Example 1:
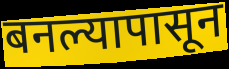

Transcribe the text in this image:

बनल्यापासून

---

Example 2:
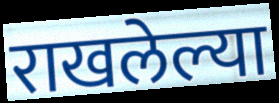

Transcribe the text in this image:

राखलेल्या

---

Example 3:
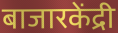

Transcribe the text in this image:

बाजारकेंद्री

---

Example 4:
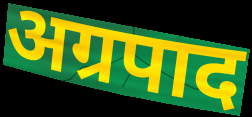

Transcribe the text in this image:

अग्रपाद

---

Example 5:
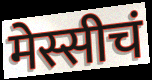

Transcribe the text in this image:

मेस्सीचं